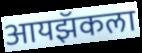
आयझॅकला